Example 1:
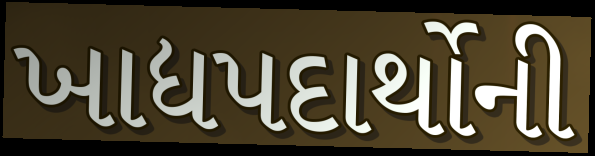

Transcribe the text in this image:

ખાદ્યપદાર્થોની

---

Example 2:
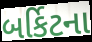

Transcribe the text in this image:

બર્કિટના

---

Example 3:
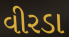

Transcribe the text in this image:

વીરડા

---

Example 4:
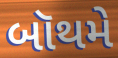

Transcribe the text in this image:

બૉથમે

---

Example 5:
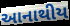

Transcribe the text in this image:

આનાથીય